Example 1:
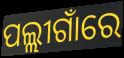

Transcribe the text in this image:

ପଲ୍ଲୀଗାଁରେ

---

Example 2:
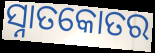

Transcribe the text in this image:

ସ୍ନାତକୋତର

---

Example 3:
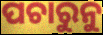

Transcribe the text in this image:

ପଚାରୁନୁ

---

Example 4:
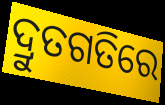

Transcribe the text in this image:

ଦ୍ରୁତଗତିରେ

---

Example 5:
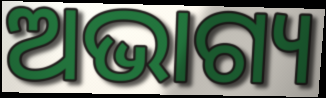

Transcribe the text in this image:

ଅଭାଗ୍ୟ